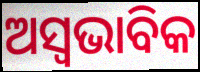
ଅସ୍ୱଭାବିକ